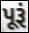
પૂરૂં